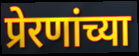
प्रेरणांच्या